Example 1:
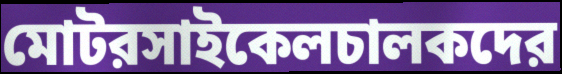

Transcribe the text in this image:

মোটরসাইকেলচালকদের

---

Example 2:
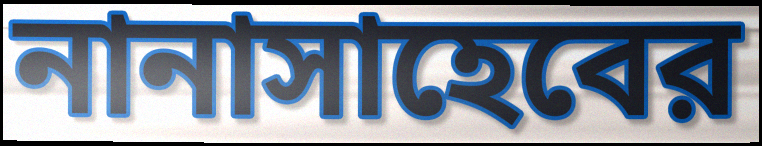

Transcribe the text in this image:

নানাসাহেবের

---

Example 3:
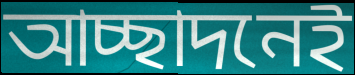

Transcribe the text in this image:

আচ্ছাদনেই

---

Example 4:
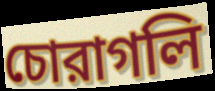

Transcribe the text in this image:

চোরাগলি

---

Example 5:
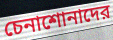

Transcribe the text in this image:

চেনাশোনাদের